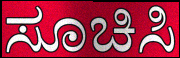
ಸೂಚಿಸಿ